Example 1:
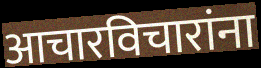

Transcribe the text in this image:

आचारविचारांना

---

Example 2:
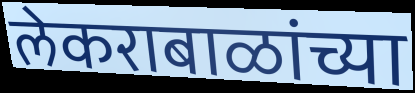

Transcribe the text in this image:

लेकराबाळांच्या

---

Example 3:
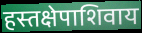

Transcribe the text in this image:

हस्तक्षेपाशिवाय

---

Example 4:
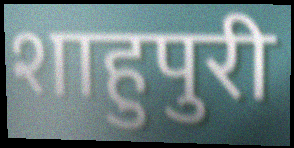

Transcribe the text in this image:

शाहुपुरी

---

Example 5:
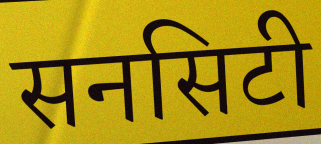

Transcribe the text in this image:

सनसिटी